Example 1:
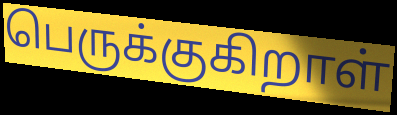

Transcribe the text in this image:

பெருக்குகிறாள்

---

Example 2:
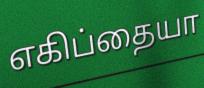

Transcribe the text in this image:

எகிப்தையா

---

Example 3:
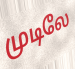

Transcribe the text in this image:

முடிலே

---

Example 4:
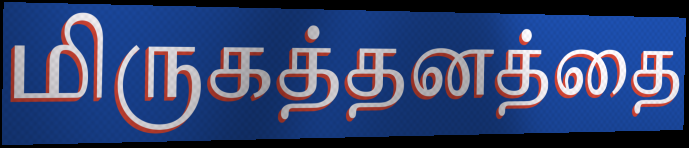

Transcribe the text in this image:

மிருகத்தனத்தை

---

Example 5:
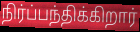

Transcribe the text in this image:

நிர்ப்பந்திக்கிறார்